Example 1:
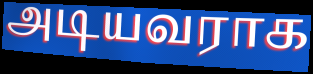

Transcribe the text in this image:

அடியவராக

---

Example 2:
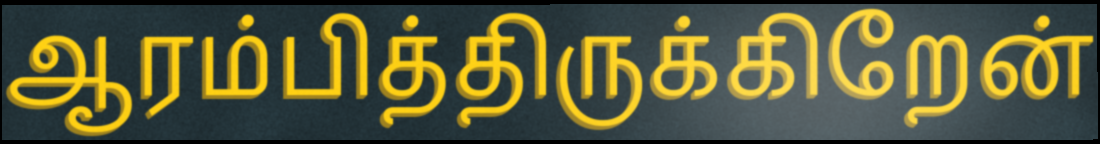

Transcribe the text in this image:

ஆரம்பித்திருக்கிறேன்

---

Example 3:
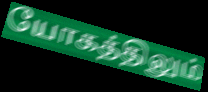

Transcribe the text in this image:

யோகத்திலும்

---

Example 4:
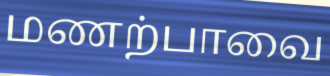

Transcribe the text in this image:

மணற்பாவை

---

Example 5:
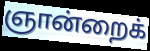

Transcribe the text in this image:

ஞான்றைக்